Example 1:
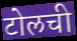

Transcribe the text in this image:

टोलची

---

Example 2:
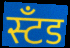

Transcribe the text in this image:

स्टॅंड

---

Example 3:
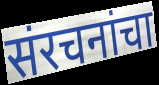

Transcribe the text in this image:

संरचनांचा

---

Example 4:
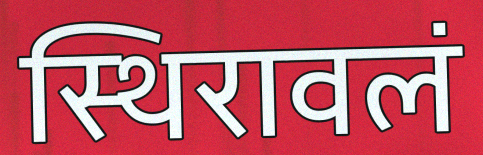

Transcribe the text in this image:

स्थिरावलं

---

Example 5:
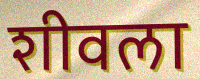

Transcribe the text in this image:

शीवला